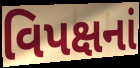
વિપક્ષનાં